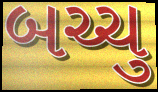
બચ્ચુ